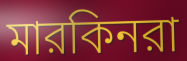
মারকিনরা